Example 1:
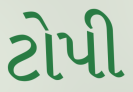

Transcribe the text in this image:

ટોપી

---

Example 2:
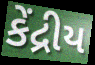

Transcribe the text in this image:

કેંદ્રીય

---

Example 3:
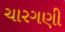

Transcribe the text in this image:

ચારગણી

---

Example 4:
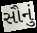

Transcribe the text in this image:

સૌનું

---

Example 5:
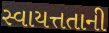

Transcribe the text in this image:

સ્વાયત્તતાની